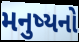
મનુષ્યનો